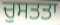
ਚੁਸਤਤਾ